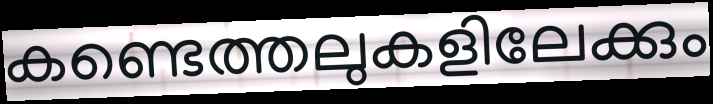
കണ്ടെത്തലുകളിലേക്കും